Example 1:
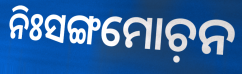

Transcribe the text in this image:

ନିଃସଙ୍ଗମୋଚ଼ନ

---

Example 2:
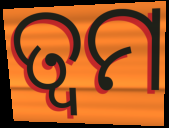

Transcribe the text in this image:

ତ୍ୱମ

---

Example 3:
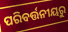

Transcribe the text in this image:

ପରିବର୍ତ୍ତନୀୟରୁ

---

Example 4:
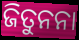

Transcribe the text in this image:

ଜିତୁନନା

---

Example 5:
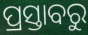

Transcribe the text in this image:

ପ୍ରସ୍ତାବରୁ